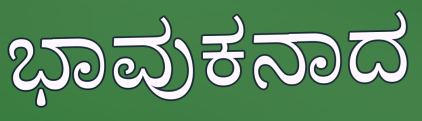
ಭಾವುಕನಾದ